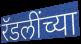
रॅडलींच्या